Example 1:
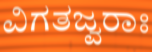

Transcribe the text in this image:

ವಿಗತಜ್ವರಾಃ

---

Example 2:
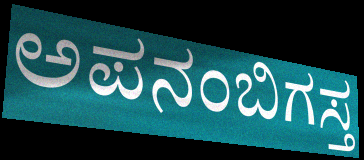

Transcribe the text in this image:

ಅಪನಂಬಿಗಸ್ತ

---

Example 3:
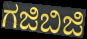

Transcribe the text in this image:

ಗಜಿಬಿಜಿ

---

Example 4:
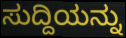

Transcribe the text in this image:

ಸುದ್ದಿಯನ್ನು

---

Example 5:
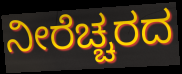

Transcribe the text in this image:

ನೀರೆಚ್ಚರದ